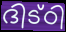
ദിട്ഠി